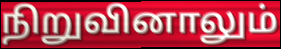
நிறுவினாலும்